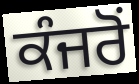
ਕੰਜਰੋਂ